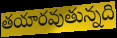
తయారవుతున్నది